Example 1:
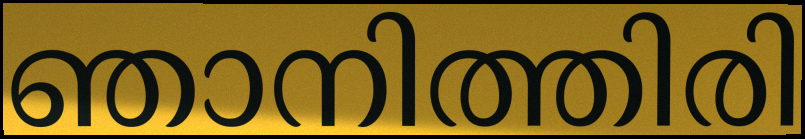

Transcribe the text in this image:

ഞാനിത്തിരി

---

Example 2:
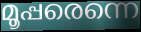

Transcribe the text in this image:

മൂപ്പരെന്നെ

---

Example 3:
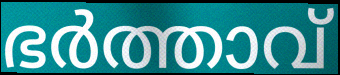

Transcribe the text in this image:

ഭർത്താവ്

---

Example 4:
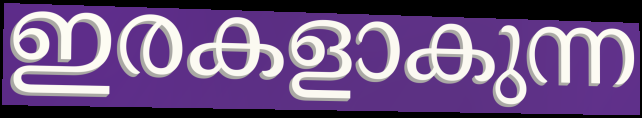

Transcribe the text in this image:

ഇരകളാകുന്ന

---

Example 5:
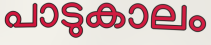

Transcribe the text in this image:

പാടുകാലം